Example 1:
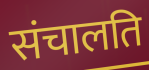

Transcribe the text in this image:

संचालति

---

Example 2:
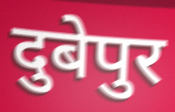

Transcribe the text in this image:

दुबेपुर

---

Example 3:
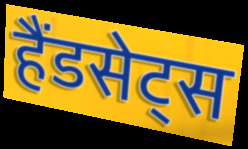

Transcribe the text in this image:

हैंडसेट्स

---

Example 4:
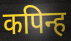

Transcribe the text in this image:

कपिन्ह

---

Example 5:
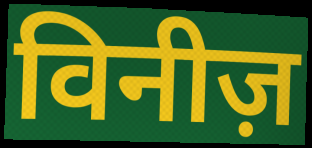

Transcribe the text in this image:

विनीज़